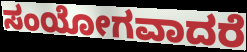
ಸಂಯೋಗವಾದರೆ